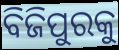
ବିଜିପୁରକୁ